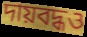
দায়বদ্ধও